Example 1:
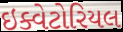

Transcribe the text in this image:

ઇક્વેટોરિયલ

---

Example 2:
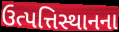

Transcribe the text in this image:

ઉત્પત્તિસ્થાનના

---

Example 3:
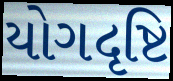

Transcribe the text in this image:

યોગદૃષ્ટિ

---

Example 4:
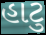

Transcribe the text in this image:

હાટુ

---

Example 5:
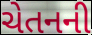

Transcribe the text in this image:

ચેતનની